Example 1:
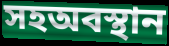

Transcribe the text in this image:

সহঅবস্থান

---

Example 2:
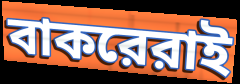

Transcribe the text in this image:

বাকরেরাই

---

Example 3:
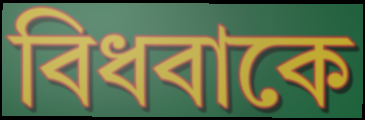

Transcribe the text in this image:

বিধবাকে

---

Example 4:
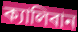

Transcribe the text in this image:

ক্যালিবান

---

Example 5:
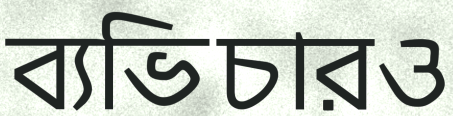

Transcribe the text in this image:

ব্যভিচারও